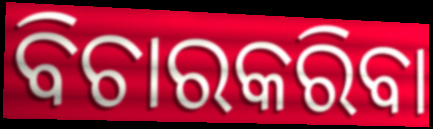
ବିଚାରକରିବା